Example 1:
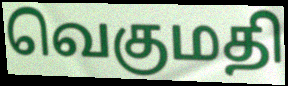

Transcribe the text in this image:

வெகுமதி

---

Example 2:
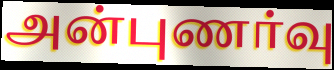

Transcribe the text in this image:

அன்புணர்வு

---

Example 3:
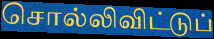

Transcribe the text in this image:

சொல்லிவிட்டுப்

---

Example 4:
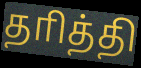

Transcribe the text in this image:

தரித்தி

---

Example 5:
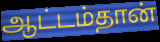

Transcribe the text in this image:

ஆட்டம்தான்